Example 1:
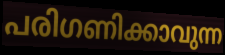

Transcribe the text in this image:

പരിഗണിക്കാവുന്ന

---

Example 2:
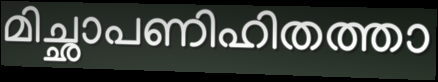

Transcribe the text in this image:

മിച്ഛാപണിഹിതത്താ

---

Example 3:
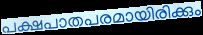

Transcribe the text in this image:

പക്ഷപാതപരമായിരിക്കും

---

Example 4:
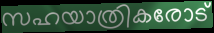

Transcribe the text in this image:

സഹയാത്രികരോട്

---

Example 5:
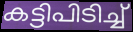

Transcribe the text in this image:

കട്ടിപിടിച്ച്